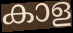
കാള